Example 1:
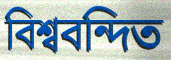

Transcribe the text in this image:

বিশ্ববন্দিত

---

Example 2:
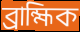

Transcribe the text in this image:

ব্ৰাহ্মিক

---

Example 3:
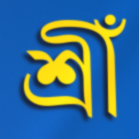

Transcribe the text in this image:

শ্ৰীঁ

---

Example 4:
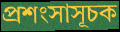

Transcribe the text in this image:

প্ৰশংসাসূচক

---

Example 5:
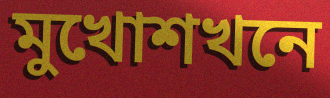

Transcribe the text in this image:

মুখোশখনে